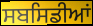
ਸਬਸਿਡੀਆਂ